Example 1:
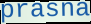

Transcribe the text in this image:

prasna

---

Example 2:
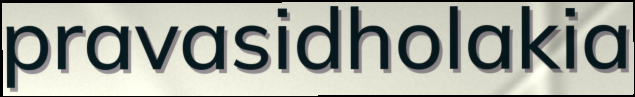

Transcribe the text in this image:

pravasidholakia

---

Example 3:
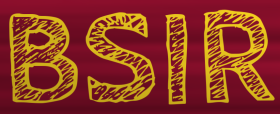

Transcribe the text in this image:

BSIR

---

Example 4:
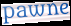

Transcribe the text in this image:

pawne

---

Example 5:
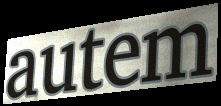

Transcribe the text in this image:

autem